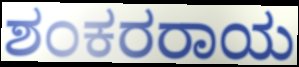
ಶಂಕರರಾಯ